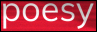
poesy